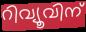
റിവ്യൂവിന്